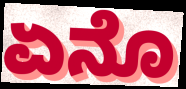
ಏನೊ